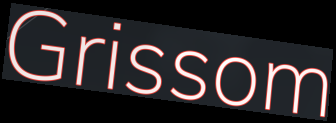
Grissom